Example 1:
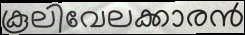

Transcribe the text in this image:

കൂലിവേലക്കാരൻ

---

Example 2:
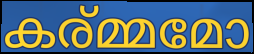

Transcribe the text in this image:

കര്മ്മമോ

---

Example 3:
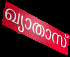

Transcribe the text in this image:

ഖ്യാതാസ്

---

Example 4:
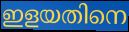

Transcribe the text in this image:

ഇളയതിനെ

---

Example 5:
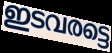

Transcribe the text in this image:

ഇടവരട്ടെ